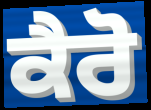
ਕੈਰੋ